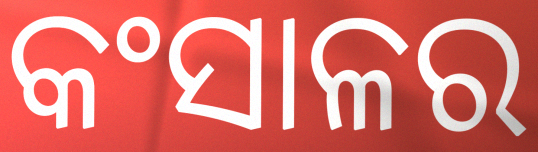
କଂସାଳର